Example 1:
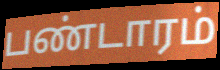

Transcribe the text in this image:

பண்டாரம்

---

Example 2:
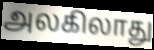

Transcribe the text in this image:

அலகிலாது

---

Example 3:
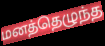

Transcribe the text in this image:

மனத்தெழுந்த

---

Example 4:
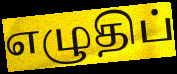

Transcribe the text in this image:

எழுதிப்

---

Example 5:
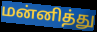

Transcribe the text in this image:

மன்னித்து